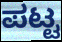
ಪಟ್ಟ